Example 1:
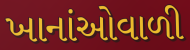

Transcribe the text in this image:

ખાનાંઓવાળી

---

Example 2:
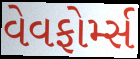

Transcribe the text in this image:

વેવફોર્મ્સ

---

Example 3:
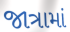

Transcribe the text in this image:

જાત્રામાં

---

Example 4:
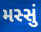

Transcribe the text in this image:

મસ્સું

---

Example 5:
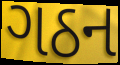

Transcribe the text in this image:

ગઠન